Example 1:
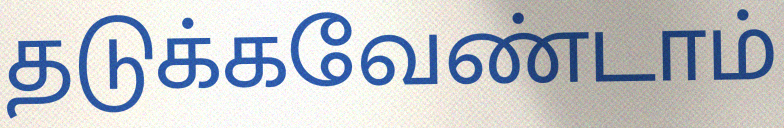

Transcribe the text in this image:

தடுக்கவேண்டாம்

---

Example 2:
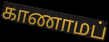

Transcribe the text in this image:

காணாமப்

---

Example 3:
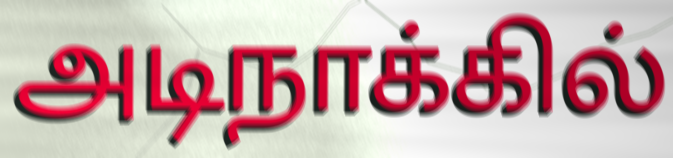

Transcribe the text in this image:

அடிநாக்கில்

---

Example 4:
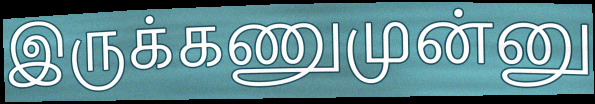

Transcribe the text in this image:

இருக்கணுமுன்னு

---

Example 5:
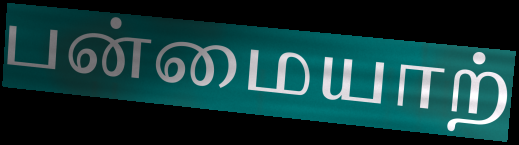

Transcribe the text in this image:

பன்மையாற்